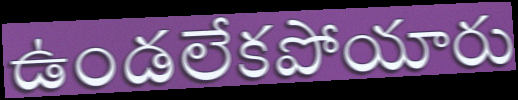
ఉండలేకపోయారు